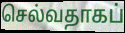
செல்வதாகப்